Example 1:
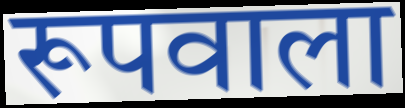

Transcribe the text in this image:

रूपवाला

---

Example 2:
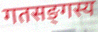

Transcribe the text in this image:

गतसङ्गस्य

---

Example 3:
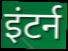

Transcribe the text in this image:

इंटर्न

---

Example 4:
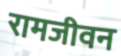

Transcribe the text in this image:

रामजीवन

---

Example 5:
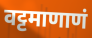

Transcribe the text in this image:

वट्टमाणाणं